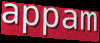
appam